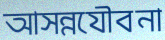
আসন্নযৌবনা